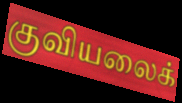
குவியலைக்